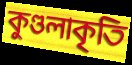
কুণ্ডলাকৃতি